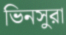
ভিনসুরা